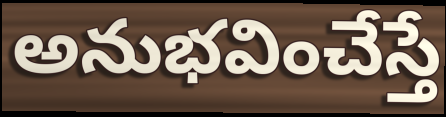
అనుభవించేస్తే